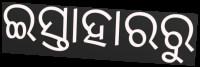
ଇସ୍ତାହାରରୁ